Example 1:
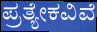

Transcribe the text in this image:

ಪ್ರತ್ಯೇಕವಿವೆ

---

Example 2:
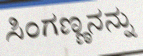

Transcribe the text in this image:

ಸಿಂಗಣ್ಣನನ್ನು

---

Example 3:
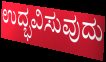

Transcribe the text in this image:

ಉದ್ಭವಿಸುವುದು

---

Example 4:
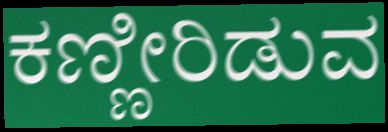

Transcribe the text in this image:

ಕಣ್ಣೀರಿಡುವ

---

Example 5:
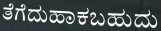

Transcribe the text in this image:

ತೆಗೆದುಹಾಕಬಹುದು